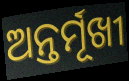
ଅନ୍ତର୍ମୂଖୀ